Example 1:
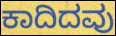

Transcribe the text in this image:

ಕಾದಿದವು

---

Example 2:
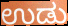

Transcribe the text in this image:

ಉಡು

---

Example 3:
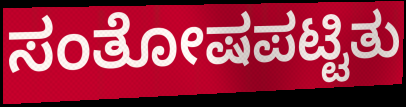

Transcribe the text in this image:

ಸಂತೋಷಪಟ್ಟಿತು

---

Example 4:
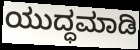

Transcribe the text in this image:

ಯುದ್ಧಮಾಡಿ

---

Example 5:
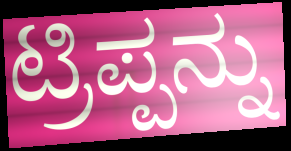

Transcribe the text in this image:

ಟ್ರಿಪ್ಪನ್ನು